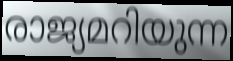
രാജ്യമറിയുന്ന